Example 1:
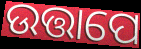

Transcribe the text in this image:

ଉତ୍ତାପେ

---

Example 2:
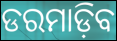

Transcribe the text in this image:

ଡରମାଡ଼ିବ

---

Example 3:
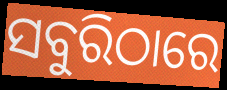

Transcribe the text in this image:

ସବୁରିଠାରେ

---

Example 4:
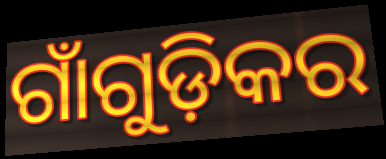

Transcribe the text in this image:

ଗାଁଗୁଡ଼ିକର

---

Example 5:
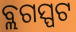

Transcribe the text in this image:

ବ୍ଲଗସ୍ପଟ